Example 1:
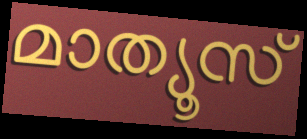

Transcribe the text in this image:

മാത്യൂസ്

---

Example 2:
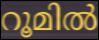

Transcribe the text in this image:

റൂമിൽ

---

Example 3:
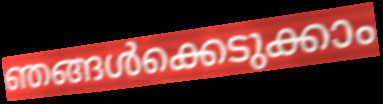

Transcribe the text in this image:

ഞങ്ങൾക്കെടുക്കാം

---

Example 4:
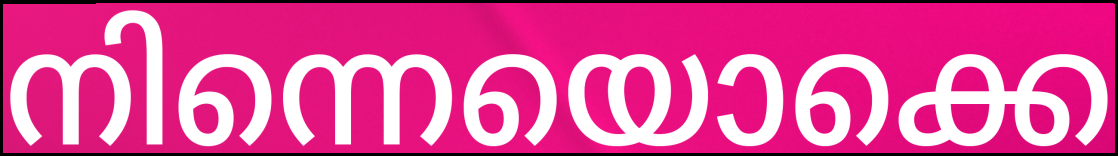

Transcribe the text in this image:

നിന്നെയൊക്കെ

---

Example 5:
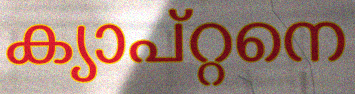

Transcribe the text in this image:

ക്യാപ്റ്റനെ